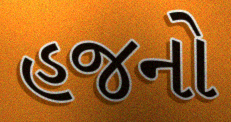
હજનો